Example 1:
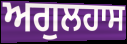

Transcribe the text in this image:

ਅਗੁਲਹਾਸ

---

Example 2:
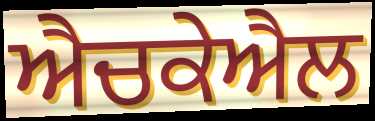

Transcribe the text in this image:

ਐਚਕੇਐਲ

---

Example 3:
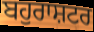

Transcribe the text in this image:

ਬਹੁਰਾਸ਼ਟਰ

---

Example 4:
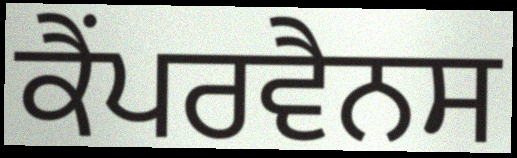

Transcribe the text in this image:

ਕੈਂਪਰਵੈਨਸ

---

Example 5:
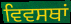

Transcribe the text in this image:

ਵਿਵਸਥਾਂ